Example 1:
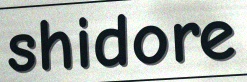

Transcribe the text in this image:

shidore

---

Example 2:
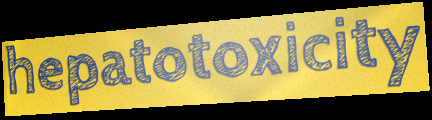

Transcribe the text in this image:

hepatotoxicity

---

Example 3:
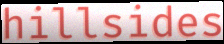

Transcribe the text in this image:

hillsides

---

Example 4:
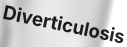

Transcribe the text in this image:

Diverticulosis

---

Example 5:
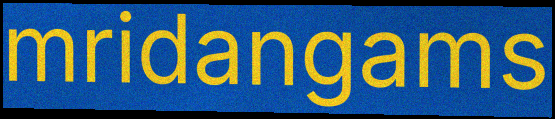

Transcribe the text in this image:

mridangams